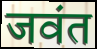
जवंत